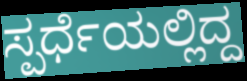
ಸ್ಪರ್ಧೆಯಲ್ಲಿದ್ದ